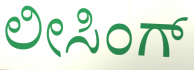
ಲೀಸಿಂಗ್